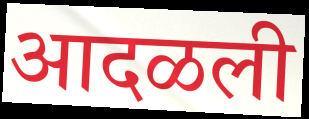
आदळली